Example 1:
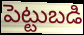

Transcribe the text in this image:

పెట్టుబడి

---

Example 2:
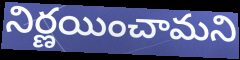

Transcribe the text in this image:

నిర్ణయించామని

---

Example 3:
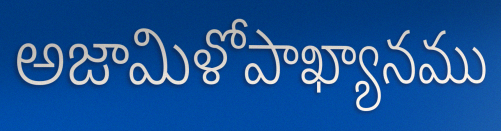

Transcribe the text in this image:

అజామిళోపాఖ్యానము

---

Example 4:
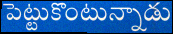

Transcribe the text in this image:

పెట్టుకొంటున్నాడు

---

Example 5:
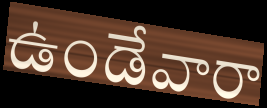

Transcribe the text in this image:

ఉండేవారా